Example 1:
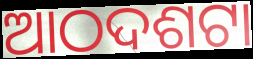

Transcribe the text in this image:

ଆଠଦଶଟା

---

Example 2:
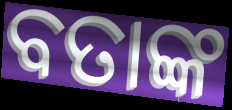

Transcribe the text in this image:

ବତାଙ୍କ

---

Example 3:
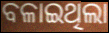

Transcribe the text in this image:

ବଳାଇଥିଲା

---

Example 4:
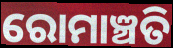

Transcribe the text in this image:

ରୋମାଞ୍ଚତି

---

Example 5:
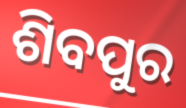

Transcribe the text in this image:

ଶିବପୁର